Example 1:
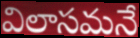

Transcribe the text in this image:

విలాసమనే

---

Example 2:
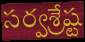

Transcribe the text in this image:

సర్వశ్రేష్ట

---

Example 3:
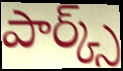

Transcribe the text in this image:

పార్క్స్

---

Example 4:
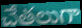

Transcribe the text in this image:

చేతలుగా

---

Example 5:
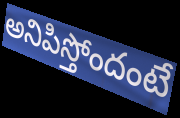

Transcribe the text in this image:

అనిపిస్తోందంటే